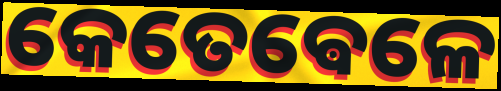
କେତେଵେଳେ